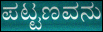
ಪಟ್ಟಣವನು